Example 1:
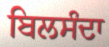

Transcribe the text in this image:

ਬਿਲਸੰਦਾ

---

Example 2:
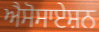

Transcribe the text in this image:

ਐਸੋਸਾਏਸ਼ਨ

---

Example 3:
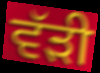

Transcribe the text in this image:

ਵੱੜੀ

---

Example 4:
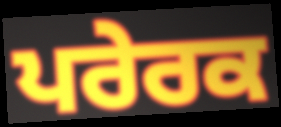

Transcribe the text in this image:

ਪਰੇਰਕ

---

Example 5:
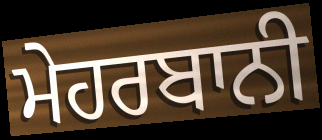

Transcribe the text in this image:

ਮੇਹਰਬਾਨੀ